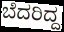
ಬೆದರಿದ್ದ